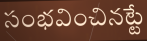
సంభవించినట్టే